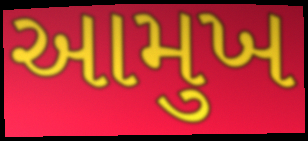
આમુખ